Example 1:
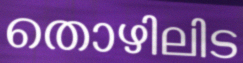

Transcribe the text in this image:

തൊഴിലിട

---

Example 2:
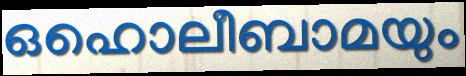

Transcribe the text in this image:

ഒഹൊലീബാമയും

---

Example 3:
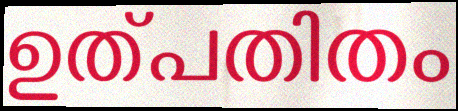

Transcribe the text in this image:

ഉത്പതിതം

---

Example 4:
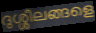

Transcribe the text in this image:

ദുശ്ശീലങ്ങളെ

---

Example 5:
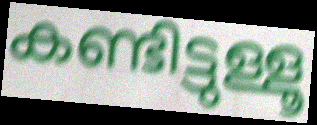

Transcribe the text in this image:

കണ്ടിട്ടുള്ളൂ